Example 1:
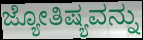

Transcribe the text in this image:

ಜ್ಯೋತಿಷ್ಯವನ್ನು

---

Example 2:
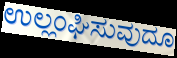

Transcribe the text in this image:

ಉಲ್ಲಂಘಿಸುವುದೂ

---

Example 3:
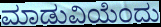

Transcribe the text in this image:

ಮಾಡುವಿಯೆಂದು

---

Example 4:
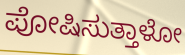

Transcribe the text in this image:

ಪೋಷಿಸುತ್ತಾಳೋ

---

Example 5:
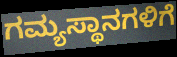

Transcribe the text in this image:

ಗಮ್ಯಸ್ಥಾನಗಳಿಗೆ